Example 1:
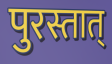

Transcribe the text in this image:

पुरस्तात्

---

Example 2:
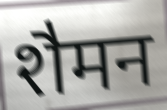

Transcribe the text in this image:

शैमन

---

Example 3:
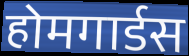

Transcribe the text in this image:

होमगार्डस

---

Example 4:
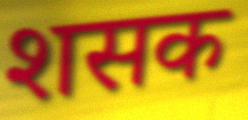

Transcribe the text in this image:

शसक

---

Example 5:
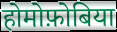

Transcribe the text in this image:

होमोफ़ोबिया